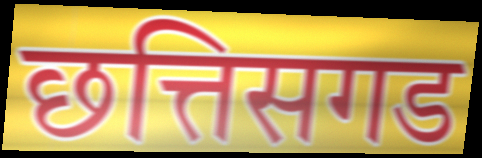
छत्तिसगड